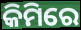
କିମିରେ